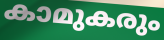
കാമുകരും